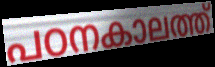
പഠനകാലത്ത്